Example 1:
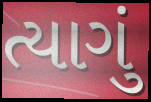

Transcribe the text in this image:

ત્યાગું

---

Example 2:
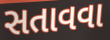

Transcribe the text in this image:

સતાવવા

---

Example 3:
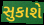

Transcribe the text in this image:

સુકાશે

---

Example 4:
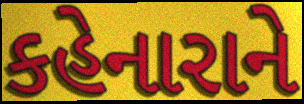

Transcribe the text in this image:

કહેનારાને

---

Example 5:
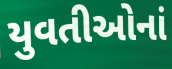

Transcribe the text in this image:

યુવતીઓનાં